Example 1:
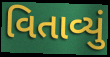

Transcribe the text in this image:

વિતાવ્યું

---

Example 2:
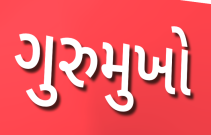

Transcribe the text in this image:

ગુરુમુખો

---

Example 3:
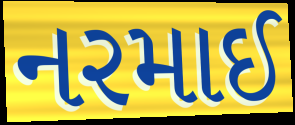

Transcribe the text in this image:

નરમાઈ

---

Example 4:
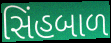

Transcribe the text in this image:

સિંહબાળ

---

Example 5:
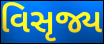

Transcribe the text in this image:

વિસૃજ્ય